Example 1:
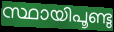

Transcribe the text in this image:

സ്ഥായിപൂണ്ടു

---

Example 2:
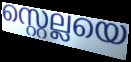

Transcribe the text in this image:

സ്റ്റെല്ലയെ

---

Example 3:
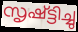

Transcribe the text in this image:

സൃഷ്ട്ടിച്ചു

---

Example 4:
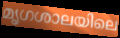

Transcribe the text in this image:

മൃഗശാലയിലെ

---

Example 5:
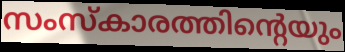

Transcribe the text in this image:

സംസ്കാരത്തിന്റെയും